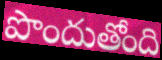
పొందుతోంది